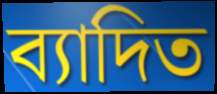
ব্যাদিত